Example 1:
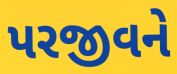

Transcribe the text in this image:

પરજીવને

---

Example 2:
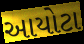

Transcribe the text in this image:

આયોટા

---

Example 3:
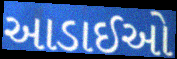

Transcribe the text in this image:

આડાઈઓ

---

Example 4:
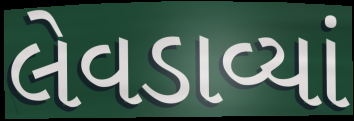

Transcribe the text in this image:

લેવડાવ્યાં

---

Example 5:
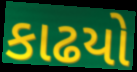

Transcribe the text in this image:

કાઢયો